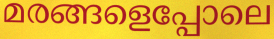
മരങ്ങളെപ്പോലെ